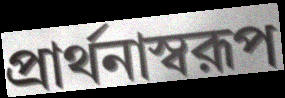
প্রার্থনাস্বরূপ